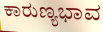
ಕಾರುಣ್ಯಭಾವ